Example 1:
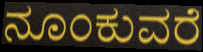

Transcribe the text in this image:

ನೂಂಕುವರೆ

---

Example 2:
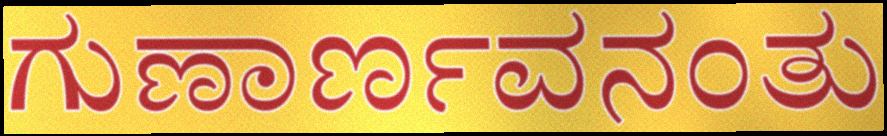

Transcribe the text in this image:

ಗುಣಾರ್ಣವನಂತು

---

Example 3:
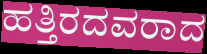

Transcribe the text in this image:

ಹತ್ತಿರದವರಾದ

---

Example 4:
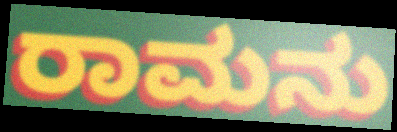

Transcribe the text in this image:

ರಾಮನು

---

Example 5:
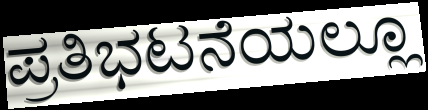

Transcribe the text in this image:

ಪ್ರತಿಭಟನೆಯಲ್ಲೂ